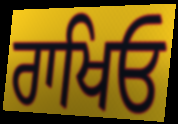
ਰਾਖਿਓ